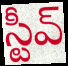
స్టీవ్